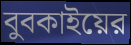
বুবকাইয়ের